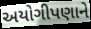
અયોગીપણાને